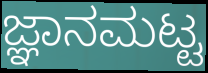
ಜ್ಞಾನಮಟ್ಟ